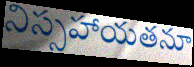
నిస్సహాయతనూ